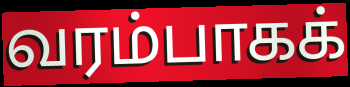
வரம்பாகக்